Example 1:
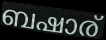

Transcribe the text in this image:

ബഷാര്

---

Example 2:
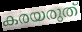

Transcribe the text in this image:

കരയരുത്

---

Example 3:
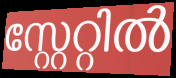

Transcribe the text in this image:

സ്റ്റേറ്റിൽ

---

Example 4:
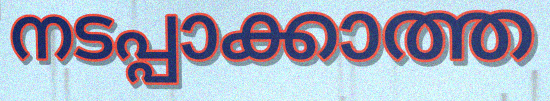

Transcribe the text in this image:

നടപ്പാക്കാത്ത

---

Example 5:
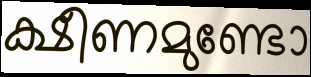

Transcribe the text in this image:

ക്ഷീണമുണ്ടോ